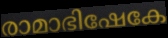
രാമാഭിഷേകേ